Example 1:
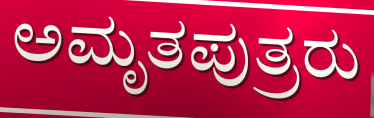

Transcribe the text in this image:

ಅಮೃತಪುತ್ರರು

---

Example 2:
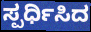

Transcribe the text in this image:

ಸ್ಪರ್ಧಿಸಿದ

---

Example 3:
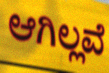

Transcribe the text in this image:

ಆಗಿಲ್ಲವೆ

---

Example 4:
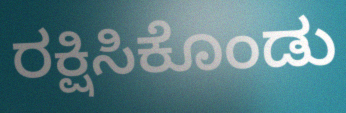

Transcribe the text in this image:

ರಕ್ಷಿಸಿಕೊಂಡು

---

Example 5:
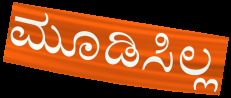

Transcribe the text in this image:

ಮೂಡಿಸಿಲ್ಲ